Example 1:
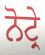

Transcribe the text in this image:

ਨੋਟ੍ਰੇ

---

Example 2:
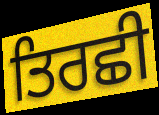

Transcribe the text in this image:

ਤਿਰਛੀ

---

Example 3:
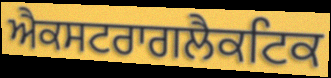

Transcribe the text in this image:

ਐਕਸਟਰਾਗਲੈਕਟਿਕ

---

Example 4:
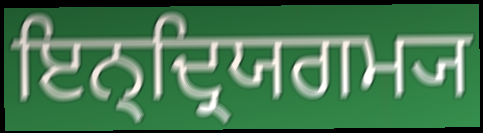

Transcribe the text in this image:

ਇਨ੍ਦ੍ਰਿਯਗਮ੍ਯ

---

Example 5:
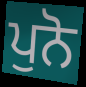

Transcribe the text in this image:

ਪੁਨੋ